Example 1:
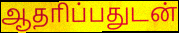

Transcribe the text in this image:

ஆதரிப்பதுடன்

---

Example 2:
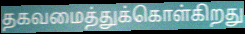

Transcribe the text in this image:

தகவமைத்துக்கொள்கிறது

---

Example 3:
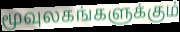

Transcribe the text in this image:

மூவுலகங்களுக்கும்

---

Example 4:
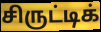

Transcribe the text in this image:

சிருட்டிக்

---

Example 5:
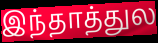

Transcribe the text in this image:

இந்தாத்துல